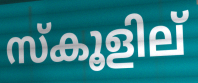
സ്കൂളില്